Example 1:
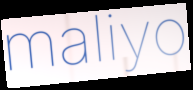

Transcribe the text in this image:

maliyo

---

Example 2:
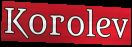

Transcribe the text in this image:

Korolev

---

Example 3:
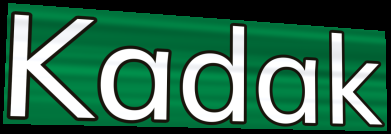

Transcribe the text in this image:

Kadak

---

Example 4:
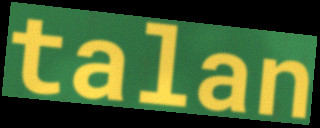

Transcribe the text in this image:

talan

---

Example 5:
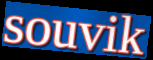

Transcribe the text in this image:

souvik